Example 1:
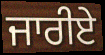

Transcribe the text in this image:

ਜਾਰੀਏ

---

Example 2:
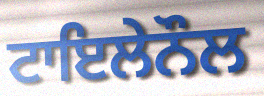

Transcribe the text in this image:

ਟਾਇਲੇਨੌਲ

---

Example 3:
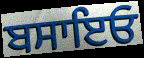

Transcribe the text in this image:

ਬਸਾਇਓ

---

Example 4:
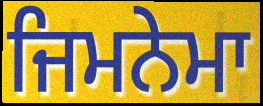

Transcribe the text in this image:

ਜਿਮਨੇਮਾ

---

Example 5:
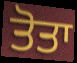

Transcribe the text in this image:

ਤੋਤਾ